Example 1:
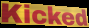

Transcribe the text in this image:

Kicked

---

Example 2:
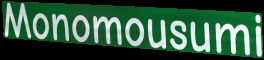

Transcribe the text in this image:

Monomousumi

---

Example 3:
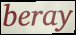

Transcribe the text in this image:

beray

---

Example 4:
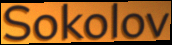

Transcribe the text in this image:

Sokolov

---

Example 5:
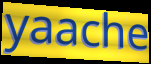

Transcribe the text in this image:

yaache